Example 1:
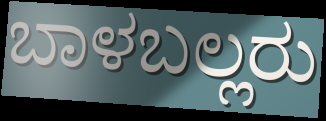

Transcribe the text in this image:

ಬಾಳಬಲ್ಲರು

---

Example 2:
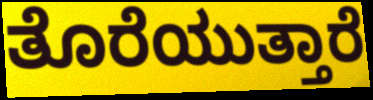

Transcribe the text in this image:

ತೊರೆಯುತ್ತಾರೆ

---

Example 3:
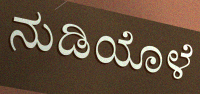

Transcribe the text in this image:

ನುಡಿಯೊಳೆ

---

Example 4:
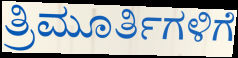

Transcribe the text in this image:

ತ್ರಿಮೂರ್ತಿಗಳಿಗೆ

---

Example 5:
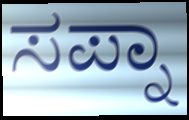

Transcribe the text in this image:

ಸಪ್ನಾ